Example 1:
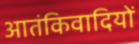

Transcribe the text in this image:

आतंकिवादियों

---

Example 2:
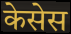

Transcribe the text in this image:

केसेस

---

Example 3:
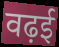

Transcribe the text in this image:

वढ़ई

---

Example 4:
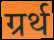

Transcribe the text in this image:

ग्रर्थ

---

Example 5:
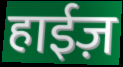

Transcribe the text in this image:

हाईज़